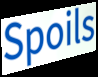
Spoils